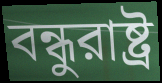
বন্ধুরাষ্ট্র